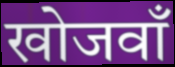
खोजवाँ